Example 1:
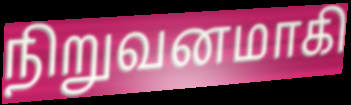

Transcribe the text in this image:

நிறுவனமாகி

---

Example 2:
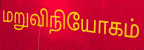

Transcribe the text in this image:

மறுவிநியோகம்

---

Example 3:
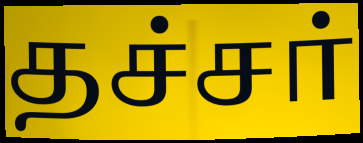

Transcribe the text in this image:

தச்சர்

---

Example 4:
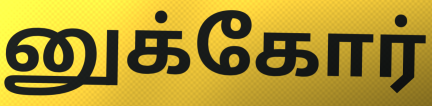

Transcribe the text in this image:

னுக்கோர்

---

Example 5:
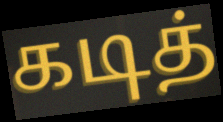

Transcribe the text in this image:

கடித்